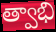
త్వాభి